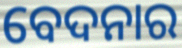
ବେଦନାର